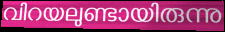
വിറയലുണ്ടായിരുന്നു